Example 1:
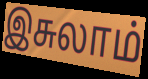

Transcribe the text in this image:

இசுலாம்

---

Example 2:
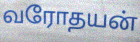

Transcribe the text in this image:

வரோதயன்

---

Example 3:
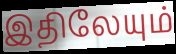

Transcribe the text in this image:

இதிலேயும்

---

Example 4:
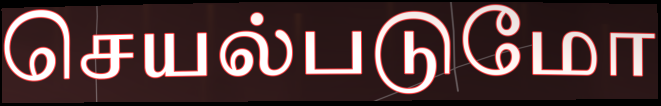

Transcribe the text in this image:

செயல்படுமோ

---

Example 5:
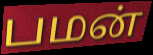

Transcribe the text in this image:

பமன்